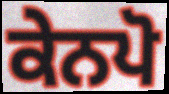
ਕੇਨਪੋ